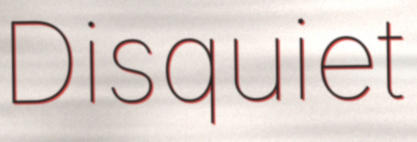
Disquiet